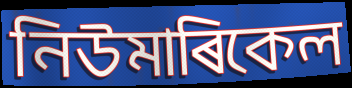
নিউমাৰিকেল